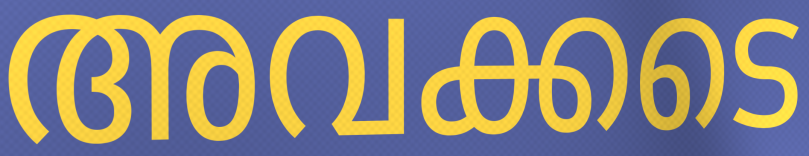
അവക്കടെ